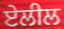
ਏਲੀਲ